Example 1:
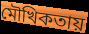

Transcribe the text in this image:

মৌখিকতায়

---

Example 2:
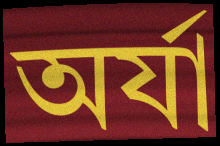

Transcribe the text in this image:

অর্যা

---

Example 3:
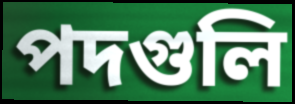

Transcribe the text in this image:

পদগুলি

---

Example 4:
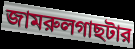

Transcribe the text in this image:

জামরুলগাছটার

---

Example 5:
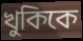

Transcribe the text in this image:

খুকিকে